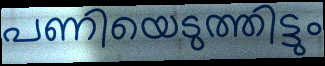
പണിയെടുത്തിട്ടും